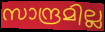
സാന്ദ്രമില്ല